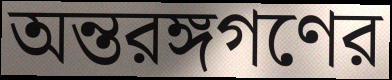
অন্তরঙ্গগণের